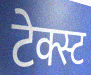
टेक्स्ट